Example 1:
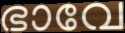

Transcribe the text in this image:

ഭാവേ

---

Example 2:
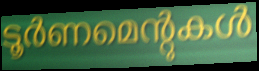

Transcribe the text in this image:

ടൂർണമെന്റുകൾ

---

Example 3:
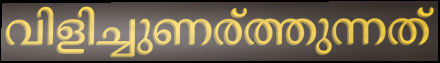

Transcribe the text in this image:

വിളിച്ചുണര്ത്തുന്നത്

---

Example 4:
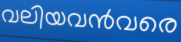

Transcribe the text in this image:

വലിയവൻവരെ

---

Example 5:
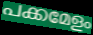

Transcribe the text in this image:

പക്കമേളം